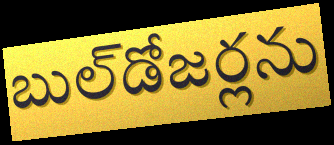
బుల్‌డోజర్లను